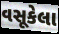
વસૂકેલા